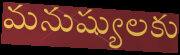
మనుష్యులకు